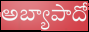
అబ్యాపాదో